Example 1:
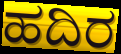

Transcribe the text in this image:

ಹದಿರ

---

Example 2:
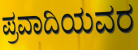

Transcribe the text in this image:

ಪ್ರವಾದಿಯವರ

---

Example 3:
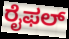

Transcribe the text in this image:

ರೈಫಲ್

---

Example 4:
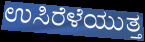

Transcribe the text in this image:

ಉಸಿರೆಳೆಯುತ್ತ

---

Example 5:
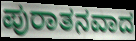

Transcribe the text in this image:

ಪುರಾತನವಾದ